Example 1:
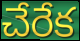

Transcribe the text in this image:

చేరేక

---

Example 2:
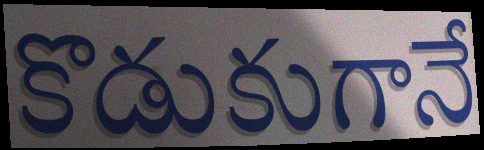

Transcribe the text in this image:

కొడుకుగానే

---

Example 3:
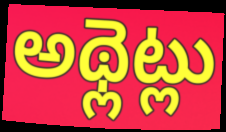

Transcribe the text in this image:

అథ్లెట్లు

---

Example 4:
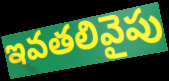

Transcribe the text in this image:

ఇవతలివైపు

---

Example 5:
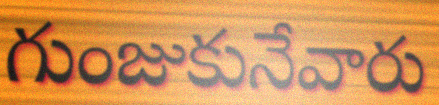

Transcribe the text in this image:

గుంజుకునేవారు